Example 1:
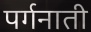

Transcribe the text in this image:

पर्गनाती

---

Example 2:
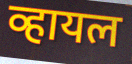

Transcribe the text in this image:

व्हायल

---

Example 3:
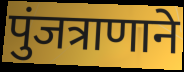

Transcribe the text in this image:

पुंजत्राणाने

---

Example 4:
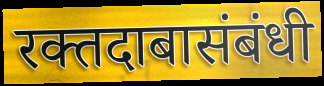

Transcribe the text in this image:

रक्तदाबासंबंधी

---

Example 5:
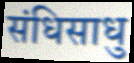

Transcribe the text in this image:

संधिसाधु